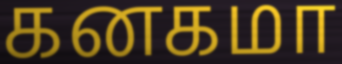
கனகமா